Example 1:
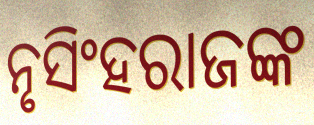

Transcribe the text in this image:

ନୃସିଂହରାଜଙ୍କ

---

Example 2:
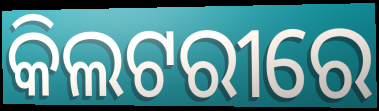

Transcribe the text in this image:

କିଲଟରୀରେ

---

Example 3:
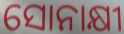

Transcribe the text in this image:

ସୋନାକ୍ଷୀ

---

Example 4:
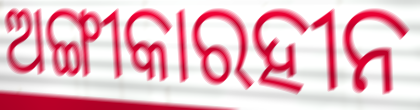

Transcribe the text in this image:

ଅଙ୍ଗୀକାରହୀନ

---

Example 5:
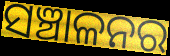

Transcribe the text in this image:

ସଞ୍ଚାଳନର